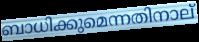
ബാധിക്കുമെന്നതിനാല്